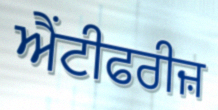
ਐਂਟੀਫਰੀਜ਼